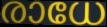
രാധേ